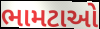
ભામટાઓ